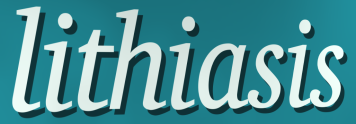
lithiasis